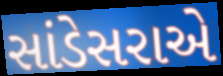
સાંડેસરાએ